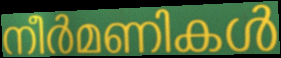
നീർമണികൾ